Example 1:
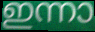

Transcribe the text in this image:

ഇന്നാ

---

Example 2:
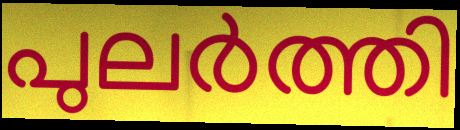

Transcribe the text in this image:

പുലർത്തി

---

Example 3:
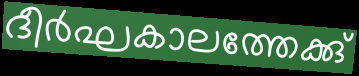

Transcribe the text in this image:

ദീർഘകാലത്തേക്കു്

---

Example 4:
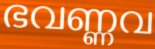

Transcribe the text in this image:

ഭവണ്ണവ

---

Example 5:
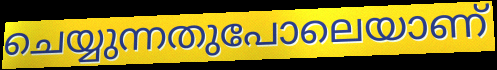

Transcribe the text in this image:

ചെയ്യുന്നതുപോലെയാണ്